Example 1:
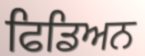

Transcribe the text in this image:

ਫਿਡਿਅਨ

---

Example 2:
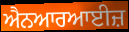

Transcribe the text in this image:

ਐਨਆਰਆਈਜ਼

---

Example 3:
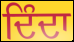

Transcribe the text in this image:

ਦਿੰਦਾ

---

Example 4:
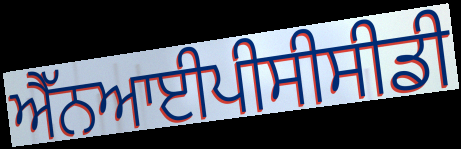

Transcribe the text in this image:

ਐੱਨਆਈਪੀਸੀਸੀਡੀ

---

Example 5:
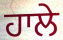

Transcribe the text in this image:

ਹਾਲੇ